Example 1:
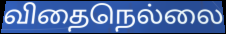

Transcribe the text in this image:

விதைநெல்லை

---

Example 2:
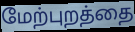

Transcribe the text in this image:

மேற்புறத்தை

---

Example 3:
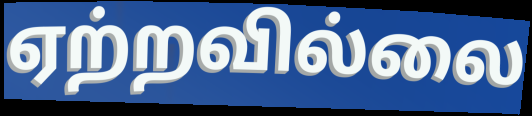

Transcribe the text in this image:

ஏற்றவில்லை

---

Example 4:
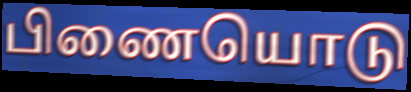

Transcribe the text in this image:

பிணையொடு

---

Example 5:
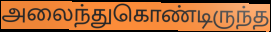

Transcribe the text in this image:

அலைந்துகொண்டிருந்த